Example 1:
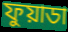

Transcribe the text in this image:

ফুয়াডা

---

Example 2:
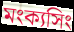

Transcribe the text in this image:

মংক্যসিং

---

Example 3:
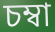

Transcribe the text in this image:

চম্বা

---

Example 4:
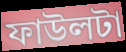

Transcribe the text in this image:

ফাউলটা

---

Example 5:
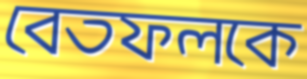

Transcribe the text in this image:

বেতফলকে